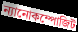
ন্যানোকম্পোজিট